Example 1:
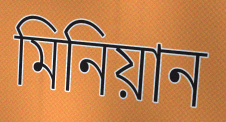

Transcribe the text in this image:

মিনিয়ান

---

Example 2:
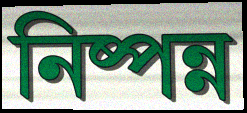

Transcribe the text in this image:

নিষ্পন্ন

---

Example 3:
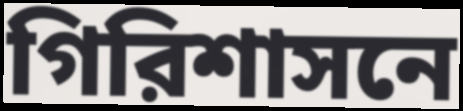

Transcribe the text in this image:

গিরিশাসনে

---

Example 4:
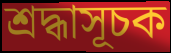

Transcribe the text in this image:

শ্রদ্ধাসূচক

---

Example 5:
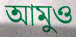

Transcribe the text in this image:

আমুও